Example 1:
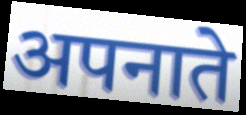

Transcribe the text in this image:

अपनाते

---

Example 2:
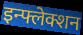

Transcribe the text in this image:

इन्फ्लेक्शन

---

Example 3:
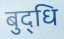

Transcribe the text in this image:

बुद्धि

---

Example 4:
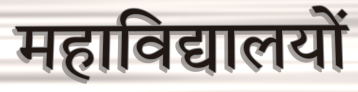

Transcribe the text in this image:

महाविद्यालयों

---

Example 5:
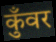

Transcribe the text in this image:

कुँवर